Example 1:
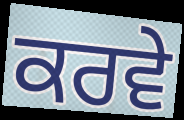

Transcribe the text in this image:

ਕਰਵੇ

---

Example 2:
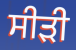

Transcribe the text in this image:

ਸੀੜੀ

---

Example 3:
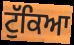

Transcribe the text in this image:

ਟੁੱਕਿਆ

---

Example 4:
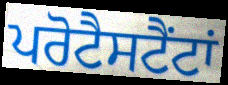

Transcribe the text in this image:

ਪਰੋਟੈਸਟੈਂਟਾਂ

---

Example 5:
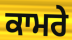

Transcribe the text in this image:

ਕਾਮਰੇ